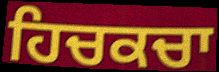
ਹਿਚਕਚਾ